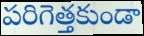
పరిగెత్తకుండా